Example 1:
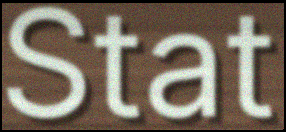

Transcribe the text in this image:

Stat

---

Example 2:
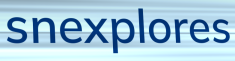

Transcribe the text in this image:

snexplores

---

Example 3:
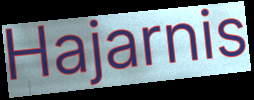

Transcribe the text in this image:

Hajarnis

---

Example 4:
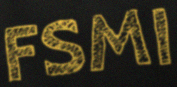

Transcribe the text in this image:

FSMI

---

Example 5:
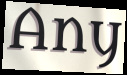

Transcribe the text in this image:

Any